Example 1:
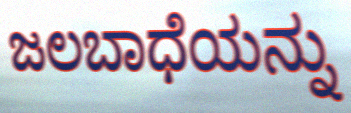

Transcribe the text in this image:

ಜಲಬಾಧೆಯನ್ನು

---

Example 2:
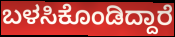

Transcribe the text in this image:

ಬಳಸಿಕೊಂಡಿದ್ದಾರೆ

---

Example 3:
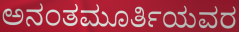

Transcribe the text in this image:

ಅನಂತಮೂರ್ತಿಯವರ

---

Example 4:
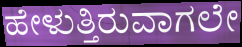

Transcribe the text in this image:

ಹೇಳುತ್ತಿರುವಾಗಲೇ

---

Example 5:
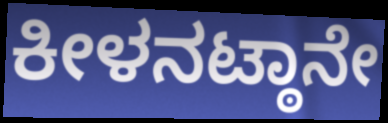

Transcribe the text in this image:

ಕೀಳನಟ್ಠಾನೇ